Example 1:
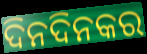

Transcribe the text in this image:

ଦିନଦିନକର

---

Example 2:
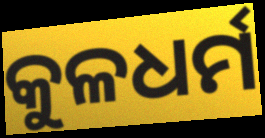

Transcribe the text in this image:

କୁଳଧର୍ମ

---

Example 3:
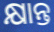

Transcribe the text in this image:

କ୍ଷାନ୍ତ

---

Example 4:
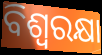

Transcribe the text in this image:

ବିଶ୍ୱରକ୍ଷା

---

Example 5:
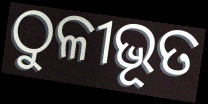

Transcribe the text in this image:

ଠୁଳୀଭୂତ